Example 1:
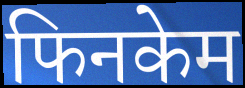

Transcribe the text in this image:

फिनकेम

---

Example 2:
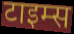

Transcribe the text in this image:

टाइम्स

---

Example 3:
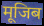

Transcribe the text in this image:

मूजिब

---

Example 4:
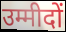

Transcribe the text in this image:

उम्मीदों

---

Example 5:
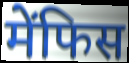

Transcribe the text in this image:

मेंफिस